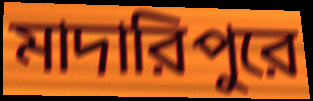
মাদারিপুরে